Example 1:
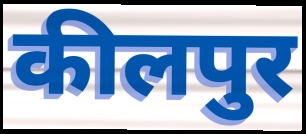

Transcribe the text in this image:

कीलपुर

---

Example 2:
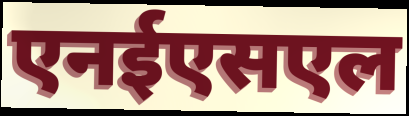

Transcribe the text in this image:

एनईएसएल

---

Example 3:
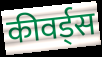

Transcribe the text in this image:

कीवर्ड्स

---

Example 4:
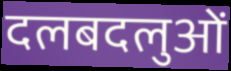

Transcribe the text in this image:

दलबदलुओं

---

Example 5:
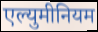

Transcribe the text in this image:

एल्युमीनियम